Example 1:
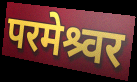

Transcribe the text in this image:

परमेश्र्वर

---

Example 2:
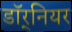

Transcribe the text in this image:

डॉर्नियर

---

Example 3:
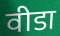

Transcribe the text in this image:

वीडा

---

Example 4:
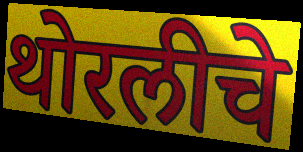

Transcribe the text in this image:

थोरलीचे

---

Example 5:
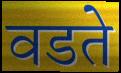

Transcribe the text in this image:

वडते